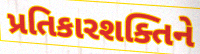
પ્રતિકારશક્તિને